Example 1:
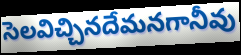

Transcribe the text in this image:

సెలవిచ్చినదేమనగానీవు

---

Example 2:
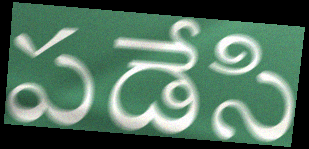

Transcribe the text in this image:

పడేసి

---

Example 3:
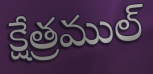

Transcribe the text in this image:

క్షేత్రముల్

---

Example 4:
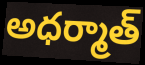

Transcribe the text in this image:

అధర్మాత్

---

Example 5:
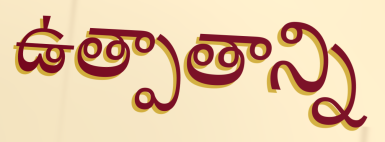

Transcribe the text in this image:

ఉత్పాతాన్ని